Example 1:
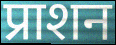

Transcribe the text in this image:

प्राशन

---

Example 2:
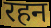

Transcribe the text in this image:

रहन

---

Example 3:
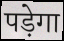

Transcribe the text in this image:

पड़ेगा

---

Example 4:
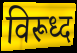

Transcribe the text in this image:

विरूध्द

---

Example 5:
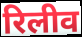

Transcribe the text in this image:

रिलीव